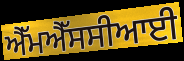
ਐੱਮਐੱਸਸੀਆਈ